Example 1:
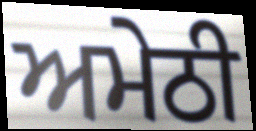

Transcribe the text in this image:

ਅਮੇਠੀ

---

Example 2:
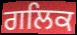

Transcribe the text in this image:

ਗਲਿਕ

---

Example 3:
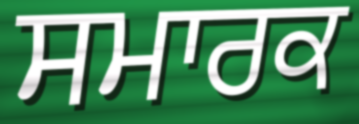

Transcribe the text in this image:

ਸਮਾਰਕ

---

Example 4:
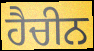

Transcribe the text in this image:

ਹੈਚੀਨ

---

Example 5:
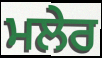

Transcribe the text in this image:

ਮਲੇਰ